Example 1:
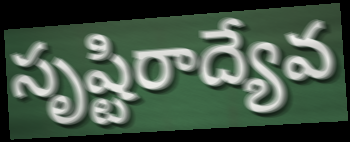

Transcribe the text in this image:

సృష్టిరాద్యేవ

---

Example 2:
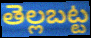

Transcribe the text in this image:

తెల్లబట్ట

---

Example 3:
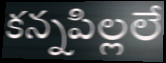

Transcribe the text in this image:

కన్నపిల్లలే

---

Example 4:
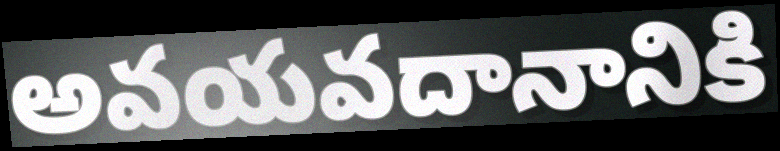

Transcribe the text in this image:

అవయవదానానికి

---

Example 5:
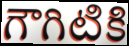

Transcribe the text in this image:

గౌగిటికి